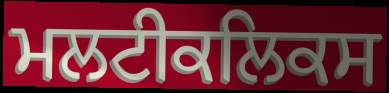
ਮਲਟੀਕਲਿਕਸ